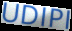
UDIPI